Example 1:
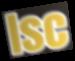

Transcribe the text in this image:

Isc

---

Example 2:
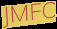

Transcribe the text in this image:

JMFC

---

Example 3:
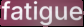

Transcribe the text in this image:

fatigue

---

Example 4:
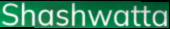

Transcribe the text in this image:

Shashwatta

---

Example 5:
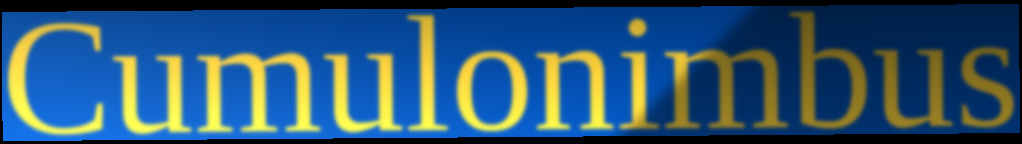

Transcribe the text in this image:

Cumulonimbus